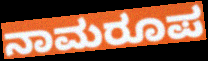
ನಾಮರೂಪ